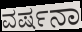
ವರ್ಷನಾ